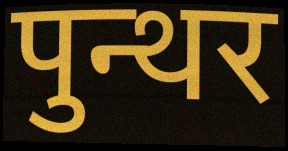
पुन्थर